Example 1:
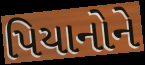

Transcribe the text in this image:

પિયાનોને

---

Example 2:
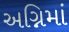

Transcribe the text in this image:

અગ્નિમાં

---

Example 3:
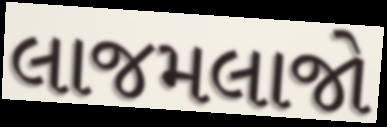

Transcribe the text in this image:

લાજમલાજો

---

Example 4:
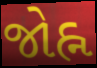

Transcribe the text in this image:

જોહ્ન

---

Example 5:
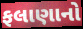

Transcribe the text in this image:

ફલાણાનો